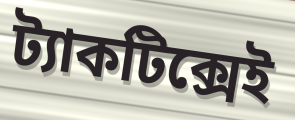
ট্যাকটিক্সেই